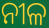
ନୀଳ